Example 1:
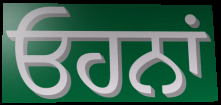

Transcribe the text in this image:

ਓਹਨਾਂ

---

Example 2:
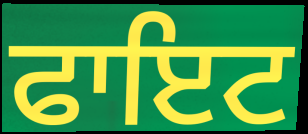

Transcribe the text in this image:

ਫਾਇਟ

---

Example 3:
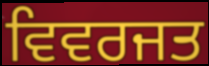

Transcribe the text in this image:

ਵਿਵਰਜਤ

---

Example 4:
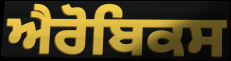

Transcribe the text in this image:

ਐਰੋਬਿਕਸ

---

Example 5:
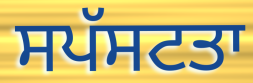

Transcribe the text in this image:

ਸਪੱਸਟਤਾ